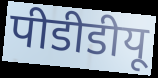
पीडीडीयू